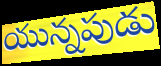
యున్నపుడు